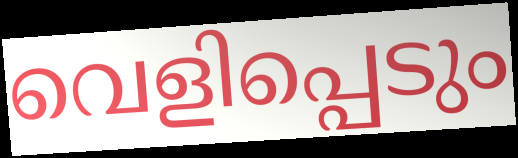
വെളിപ്പെടും